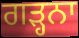
ਗੜ੍ਹਨਾ